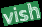
vish